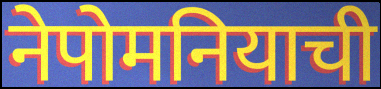
नेपोमनियाची